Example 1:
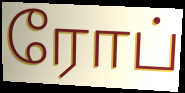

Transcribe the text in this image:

ரோப்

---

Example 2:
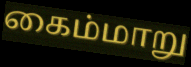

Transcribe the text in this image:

கைம்மாறு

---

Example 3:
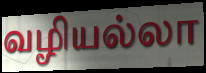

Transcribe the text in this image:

வழியல்லா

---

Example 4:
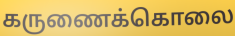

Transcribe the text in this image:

கருணைக்கொலை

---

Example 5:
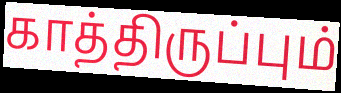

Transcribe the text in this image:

காத்திருப்பும்